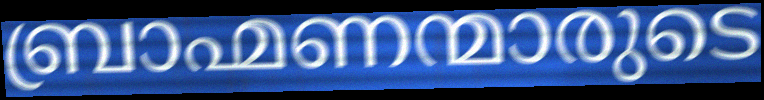
ബ്രാഹ്മണന്മാരുടെ